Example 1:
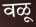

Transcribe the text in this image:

वळू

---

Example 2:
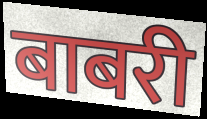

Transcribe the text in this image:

बाबरी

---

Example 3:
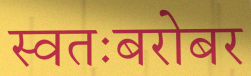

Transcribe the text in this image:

स्वतःबरोबर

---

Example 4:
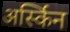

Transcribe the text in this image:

अर्स्किन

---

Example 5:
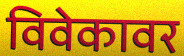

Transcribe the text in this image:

विवेकावर